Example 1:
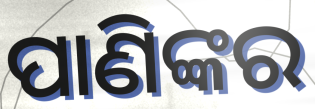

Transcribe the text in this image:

ପାଣିଙ୍କର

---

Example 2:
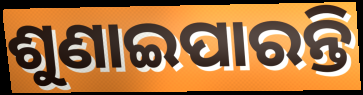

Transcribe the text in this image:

ଶୁଣାଇପାରନ୍ତି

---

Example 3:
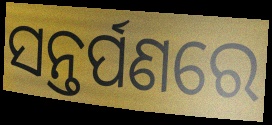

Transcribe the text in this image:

ସନ୍ତର୍ପଣରେ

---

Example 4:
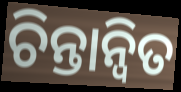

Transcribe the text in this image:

ଚିନ୍ତାନ୍ୱିତ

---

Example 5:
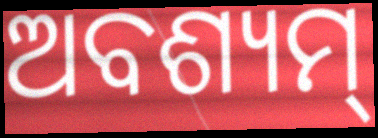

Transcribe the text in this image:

ଅବଶ୍ୟମ୍